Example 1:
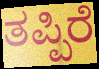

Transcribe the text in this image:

ತಪ್ಪಿರೆ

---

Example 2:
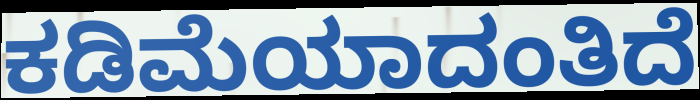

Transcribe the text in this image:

ಕಡಿಮೆಯಾದಂತಿದೆ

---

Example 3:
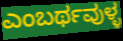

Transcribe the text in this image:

ಎಂಬರ್ಥವುಳ್ಳ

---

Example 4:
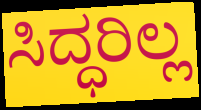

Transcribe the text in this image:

ಸಿದ್ಧರಿಲ್ಲ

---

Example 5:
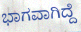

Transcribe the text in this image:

ಭಾಗವಾಗಿದ್ದೆ